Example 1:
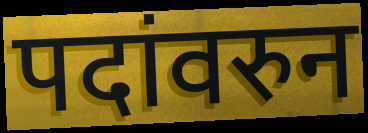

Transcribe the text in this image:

पदांवरुन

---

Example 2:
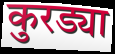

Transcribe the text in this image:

कुरड्या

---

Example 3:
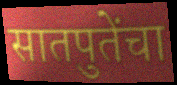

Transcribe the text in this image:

सातपुतेंचा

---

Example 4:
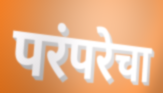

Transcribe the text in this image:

परंपरेचा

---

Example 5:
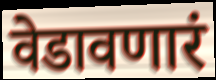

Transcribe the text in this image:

वेडावणारं